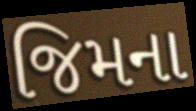
જિમના